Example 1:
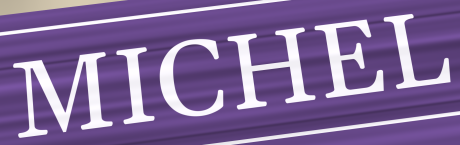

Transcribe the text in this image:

MICHEL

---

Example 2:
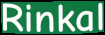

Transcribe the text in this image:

Rinkal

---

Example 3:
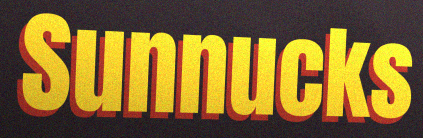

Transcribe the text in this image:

Sunnucks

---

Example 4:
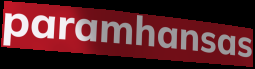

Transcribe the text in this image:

paramhansas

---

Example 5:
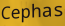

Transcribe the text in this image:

Cephas